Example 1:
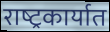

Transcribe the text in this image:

राष्ट्रकार्यात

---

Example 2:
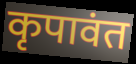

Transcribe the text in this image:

कृपावंत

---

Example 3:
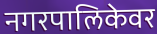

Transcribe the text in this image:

नगरपालिकेवर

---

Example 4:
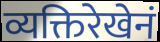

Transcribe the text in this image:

व्यक्तिरेखेनं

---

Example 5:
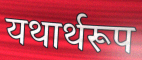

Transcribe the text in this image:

यथार्थरूप